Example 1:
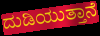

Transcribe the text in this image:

ದುಡಿಯುತ್ತಾನೆ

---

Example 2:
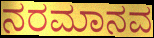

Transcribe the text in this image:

ನರಮಾನವ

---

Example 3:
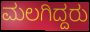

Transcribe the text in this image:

ಮಲಗಿದ್ದರು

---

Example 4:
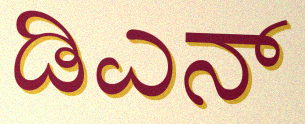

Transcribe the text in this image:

ಡಿಎನ್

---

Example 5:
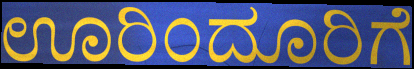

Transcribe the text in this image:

ಊರಿಂದೂರಿಗೆ